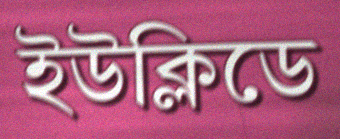
ইউক্লিডে